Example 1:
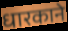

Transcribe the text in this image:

धारकाने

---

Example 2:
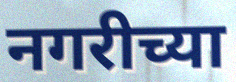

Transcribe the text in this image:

नगरीच्या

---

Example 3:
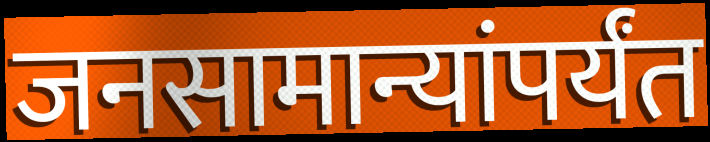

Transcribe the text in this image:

जनसामान्यांपर्यंत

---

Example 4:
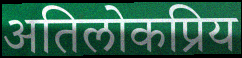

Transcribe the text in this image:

अतिलोकप्रिय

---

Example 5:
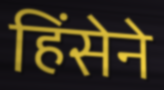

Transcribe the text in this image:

हिंसेने